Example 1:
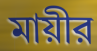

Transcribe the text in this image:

মায়ীর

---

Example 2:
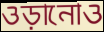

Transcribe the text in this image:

ওড়ানোও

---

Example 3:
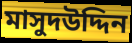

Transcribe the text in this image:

মাসুদউদ্দিন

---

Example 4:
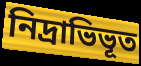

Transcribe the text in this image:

নিদ্রাভিভূত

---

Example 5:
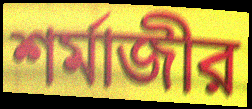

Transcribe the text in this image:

শর্মাজীর